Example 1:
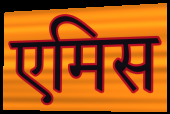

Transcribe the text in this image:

एमिस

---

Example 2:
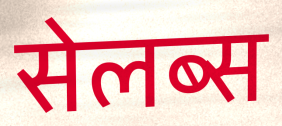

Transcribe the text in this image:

सेलब्स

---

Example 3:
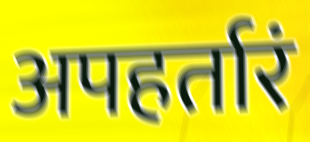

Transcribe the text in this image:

अपहर्तारं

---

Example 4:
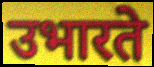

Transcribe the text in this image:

उभारते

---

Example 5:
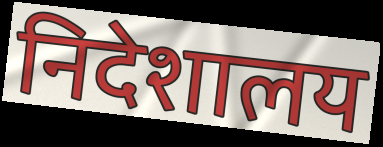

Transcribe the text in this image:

निदेशालय